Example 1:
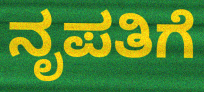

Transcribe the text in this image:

ನೃಪತಿಗೆ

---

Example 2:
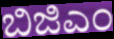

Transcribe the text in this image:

ಬಿಜಿಎಂ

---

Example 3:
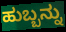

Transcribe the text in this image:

ಹುಬ್ಬನ್ನು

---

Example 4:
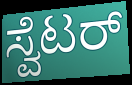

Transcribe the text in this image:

ಸ್ವೆಟರ್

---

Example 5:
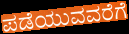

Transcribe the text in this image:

ಪಡೆಯುವವರೆಗೆ